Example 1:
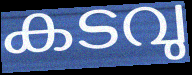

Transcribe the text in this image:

കടവു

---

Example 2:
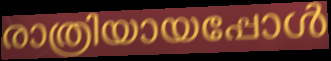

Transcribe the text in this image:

രാത്രിയായപ്പോൾ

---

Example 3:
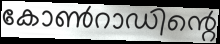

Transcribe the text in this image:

കോൺറാഡിന്റെ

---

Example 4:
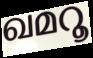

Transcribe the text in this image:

ഖമറൂ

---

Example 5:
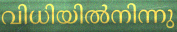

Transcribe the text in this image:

വിധിയിൽനിന്നു